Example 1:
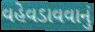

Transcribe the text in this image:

વહેવડાવવાનું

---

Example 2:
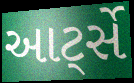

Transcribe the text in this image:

આર્ટ્સે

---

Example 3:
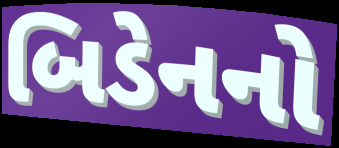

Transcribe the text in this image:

બિડેનનો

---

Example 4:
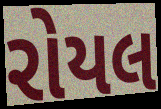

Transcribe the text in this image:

રોયલ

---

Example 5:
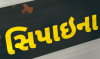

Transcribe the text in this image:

સિપાઇના